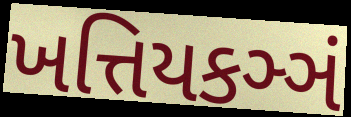
ખત્તિયકઞ્ઞં